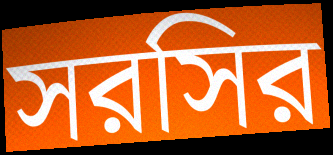
সরসির